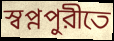
স্বপ্নপুরীতে